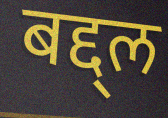
बद्द्ल